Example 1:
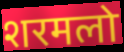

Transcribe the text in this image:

शरमलो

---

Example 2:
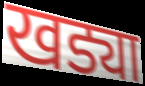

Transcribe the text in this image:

खड्या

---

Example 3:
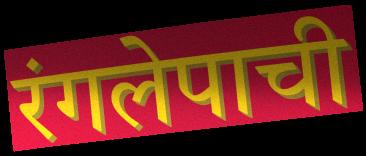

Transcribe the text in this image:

रंगलेपाची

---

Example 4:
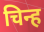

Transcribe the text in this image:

चिन्ह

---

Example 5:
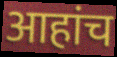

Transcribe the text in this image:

आहांच